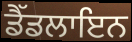
ਡੈੱਡਲਾਇਨ